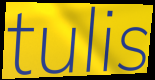
tulis